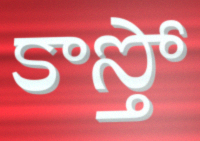
కాస్తో